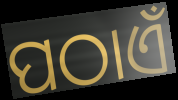
ପଠାଏଁ